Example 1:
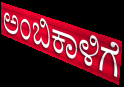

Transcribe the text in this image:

ಅಂಬಿಕಾಳಿಗೆ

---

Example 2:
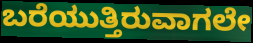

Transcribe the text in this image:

ಬರೆಯುತ್ತಿರುವಾಗಲೇ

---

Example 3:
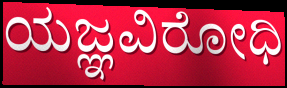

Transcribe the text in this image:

ಯಜ್ಞವಿರೋಧಿ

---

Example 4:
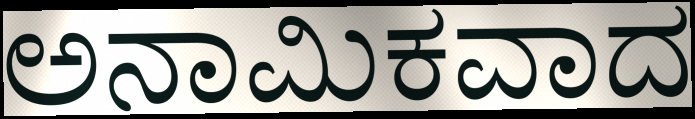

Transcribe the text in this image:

ಅನಾಮಿಕವಾದ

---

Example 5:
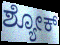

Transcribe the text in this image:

ಶ್ಯೋಕ್